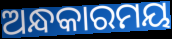
ଅନ୍ଧକାରମୟ